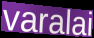
varalai